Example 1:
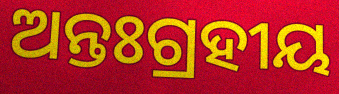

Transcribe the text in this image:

ଅନ୍ତଃଗ୍ରହୀୟ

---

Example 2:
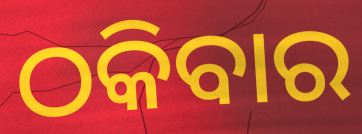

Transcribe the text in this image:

ଠକିବାର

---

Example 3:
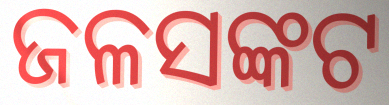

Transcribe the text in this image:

ଜଳସଙ୍କଟ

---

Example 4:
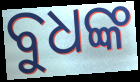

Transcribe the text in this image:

ବୁଧଙ୍କ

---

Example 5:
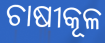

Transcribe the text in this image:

ଚାଷୀକୂଳ